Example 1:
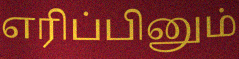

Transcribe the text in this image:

எரிப்பினும்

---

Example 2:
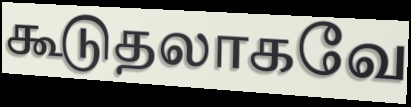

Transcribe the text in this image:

கூடுதலாகவே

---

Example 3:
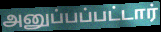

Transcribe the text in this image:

அனுப்பப்பட்டார்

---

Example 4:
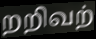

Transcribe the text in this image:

றறிவற்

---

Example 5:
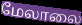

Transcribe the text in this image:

மேலாலை